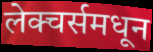
लेक्चर्समधून